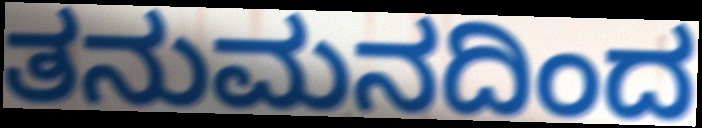
ತನುಮನದಿಂದ